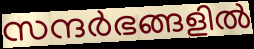
സന്ദർഭങ്ങളിൽ